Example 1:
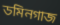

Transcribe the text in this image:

ডমিনগাজ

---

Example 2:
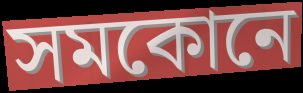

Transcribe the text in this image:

সমকোনে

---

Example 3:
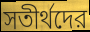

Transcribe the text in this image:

সতীর্থদের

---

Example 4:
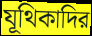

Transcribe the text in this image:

যূথিকাদির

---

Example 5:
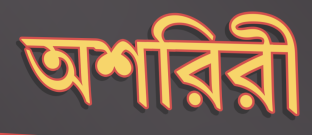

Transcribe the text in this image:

অশরিরী